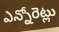
ఎన్నోరెట్లు